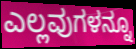
ಎಲ್ಲವುಗಳನ್ನೂ